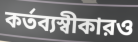
কর্তব্যস্বীকারও